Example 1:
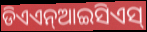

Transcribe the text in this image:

ଡିଏଏନ୍ଆଇସିଏସ୍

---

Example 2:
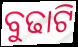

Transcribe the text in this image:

ବୁଢାଟି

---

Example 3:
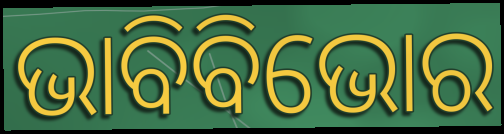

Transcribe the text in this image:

ଭାବିବିଭୋର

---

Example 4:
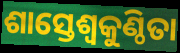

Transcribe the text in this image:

ଶାସ୍ତେଶ୍ବକୁଣ୍ଠିତା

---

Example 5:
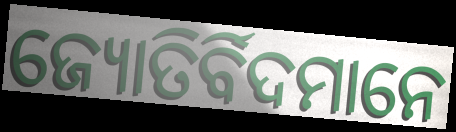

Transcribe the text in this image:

ଜ୍ୟୋତିର୍ବିଦମାନେ